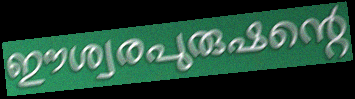
ഈശ്വരപുരുഷന്റെ